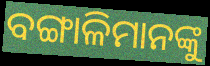
ବଙ୍ଗାଳିମାନଙ୍କୁ